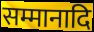
सम्मानादि